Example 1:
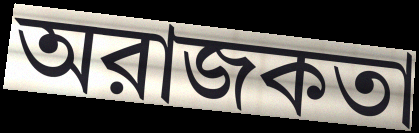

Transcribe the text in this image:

অরাজকতা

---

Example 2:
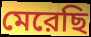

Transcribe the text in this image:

মেরেছি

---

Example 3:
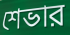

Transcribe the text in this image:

শেভার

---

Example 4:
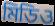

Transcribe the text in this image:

মিডিও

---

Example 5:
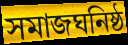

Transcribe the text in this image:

সমাজঘনিষ্ঠ